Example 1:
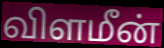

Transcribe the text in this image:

விளமீன்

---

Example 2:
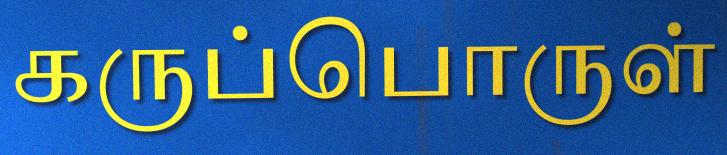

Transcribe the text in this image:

கருப்பொருள்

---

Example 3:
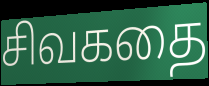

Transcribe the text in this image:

சிவகதை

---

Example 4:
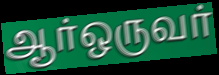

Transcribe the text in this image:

ஆர்ஒருவர்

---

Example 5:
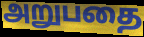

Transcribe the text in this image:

அறுபதை